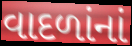
વાદળાંનાં